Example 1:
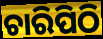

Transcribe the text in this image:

ଚାରିପିଠି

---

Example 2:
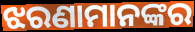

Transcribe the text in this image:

ଝରଣାମାନଙ୍କର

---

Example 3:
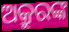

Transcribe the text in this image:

ଅକ୍ରୁରଙ୍କ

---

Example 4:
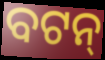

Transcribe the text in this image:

ବଟନ୍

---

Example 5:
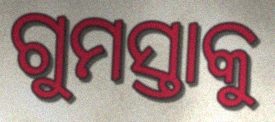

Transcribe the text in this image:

ଗୁମସ୍ତାକୁ